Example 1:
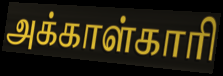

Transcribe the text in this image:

அக்காள்காரி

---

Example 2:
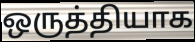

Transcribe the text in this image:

ஒருத்தியாக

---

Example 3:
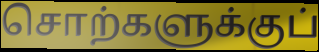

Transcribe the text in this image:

சொற்களுக்குப்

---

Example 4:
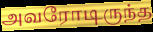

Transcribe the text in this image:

அவரோடிருந்த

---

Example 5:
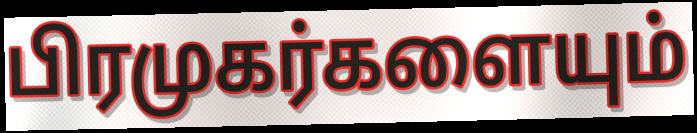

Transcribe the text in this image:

பிரமுகர்களையும்